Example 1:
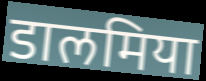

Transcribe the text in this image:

डालमिया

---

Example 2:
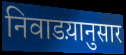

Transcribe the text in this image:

निवाडय़ानुसार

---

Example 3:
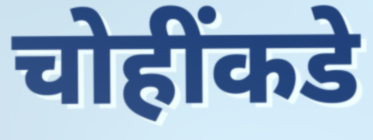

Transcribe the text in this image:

चोहींकडे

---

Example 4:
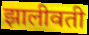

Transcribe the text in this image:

झालीवती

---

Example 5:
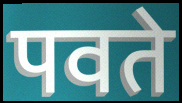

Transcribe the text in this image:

पवते